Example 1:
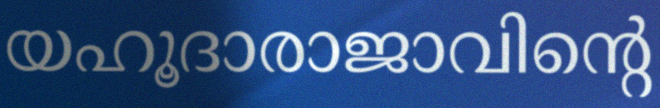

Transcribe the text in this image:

യഹൂദാരാജാവിന്റെ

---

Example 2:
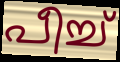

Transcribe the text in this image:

പീച്ച്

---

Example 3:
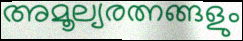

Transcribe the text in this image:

അമൂല്യരത്നങ്ങളും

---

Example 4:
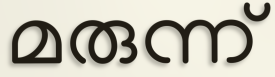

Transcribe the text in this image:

മരുന്ന്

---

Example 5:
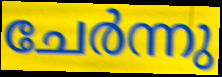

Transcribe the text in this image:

ചേർന്നു